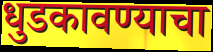
धुडकावण्याचा